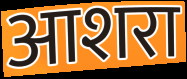
आशरा